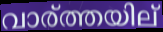
വാര്ത്തയില്